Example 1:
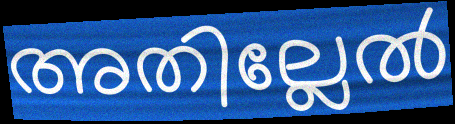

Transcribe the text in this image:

അതില്ലേൽ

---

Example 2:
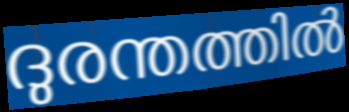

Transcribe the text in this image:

ദുരന്തത്തിൽ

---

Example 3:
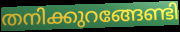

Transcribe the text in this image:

തനിക്കുറങ്ങേണ്ടി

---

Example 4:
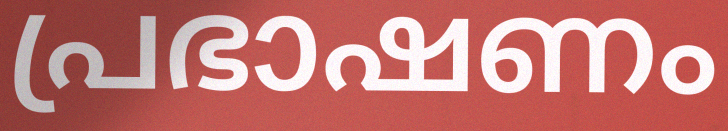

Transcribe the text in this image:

പ്രഭാഷണം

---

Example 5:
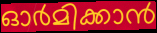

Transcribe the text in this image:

ഓർമിക്കാൻ